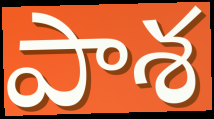
పాశ